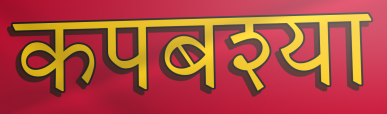
कपबश्या